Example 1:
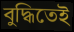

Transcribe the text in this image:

বুদ্ধিতেই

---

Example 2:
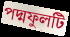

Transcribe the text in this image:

পদ্মফুলটি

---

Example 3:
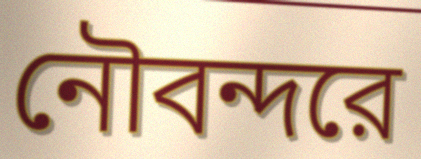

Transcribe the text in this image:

নৌবন্দরে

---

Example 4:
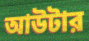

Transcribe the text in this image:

আউটার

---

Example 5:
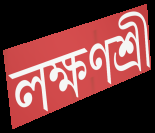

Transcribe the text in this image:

লক্ষণশ্রী